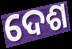
ଦେଶ